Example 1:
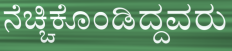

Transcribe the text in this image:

ನೆಚ್ಚಿಕೊಂಡಿದ್ದವರು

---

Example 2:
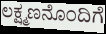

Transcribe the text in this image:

ಲಕ್ಷ್ಮಣನೊಂದಿಗೆ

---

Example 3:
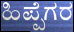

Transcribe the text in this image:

ಹಿಪ್ಪೆಗರ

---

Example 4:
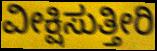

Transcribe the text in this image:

ವೀಕ್ಷಿಸುತ್ತೀರಿ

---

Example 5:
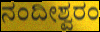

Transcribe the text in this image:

ನಂದೀಶ್ವರಂ